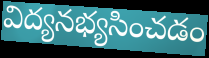
విద్యనభ్యసించడం